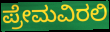
ಪ್ರೇಮವಿರಲಿ